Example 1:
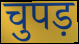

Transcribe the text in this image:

चुपड़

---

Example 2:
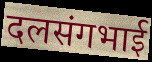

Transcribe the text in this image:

दलसंगभाई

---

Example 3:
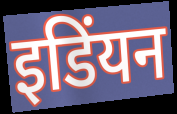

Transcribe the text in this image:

इडिंयन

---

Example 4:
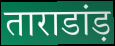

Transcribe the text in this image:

ताराडांड़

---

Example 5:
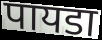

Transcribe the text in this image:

पायडा